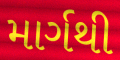
માર્ગથી